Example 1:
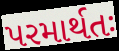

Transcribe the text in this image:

પરમાર્થતઃ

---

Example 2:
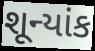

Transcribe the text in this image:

શૂન્યાંક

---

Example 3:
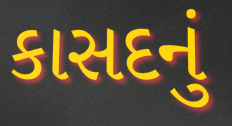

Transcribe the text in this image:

કાસદનું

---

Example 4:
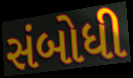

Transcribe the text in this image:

સંબોધી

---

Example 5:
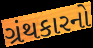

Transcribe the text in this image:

ગ્રંથકારનો